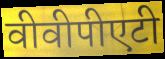
वीवीपीएटी